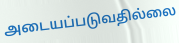
அடையப்படுவதில்லை